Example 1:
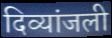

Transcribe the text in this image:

दिव्यांजली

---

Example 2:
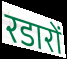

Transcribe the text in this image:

रडारों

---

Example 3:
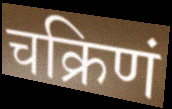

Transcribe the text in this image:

चक्रिणं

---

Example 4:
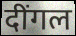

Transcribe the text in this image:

दींगल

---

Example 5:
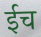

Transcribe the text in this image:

ईच